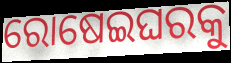
ରୋଷେଇଘରକୁ